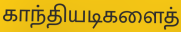
காந்தியடிகளைத்